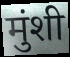
मुंशी